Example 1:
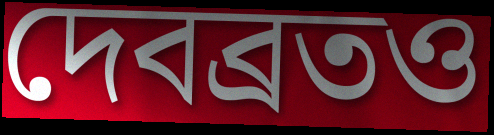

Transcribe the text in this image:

দেবব্রতও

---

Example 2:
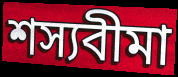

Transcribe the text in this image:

শস্যবীমা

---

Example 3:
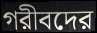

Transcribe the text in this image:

গরীবদের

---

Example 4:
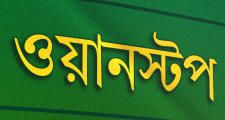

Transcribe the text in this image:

ওয়ানস্টপ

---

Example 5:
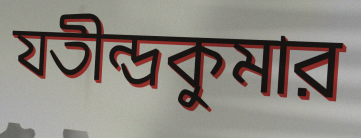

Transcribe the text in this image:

যতীন্দ্রকুমার